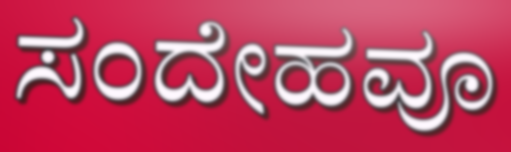
ಸಂದೇಹವೂ